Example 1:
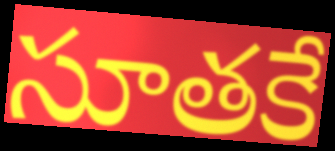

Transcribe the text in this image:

సూతకే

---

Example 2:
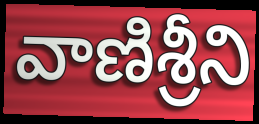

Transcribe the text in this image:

వాణిశ్రీని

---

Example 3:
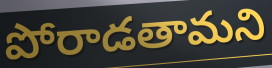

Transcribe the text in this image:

పోరాడతామని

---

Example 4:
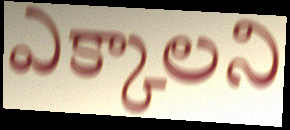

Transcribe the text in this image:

ఎక్కాలని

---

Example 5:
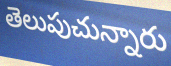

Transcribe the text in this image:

తెలుపుచున్నారు